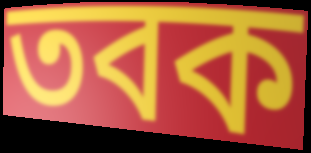
তবক